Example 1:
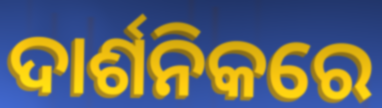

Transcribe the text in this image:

ଦାର୍ଶନିକରେ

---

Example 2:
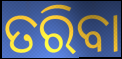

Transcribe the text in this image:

ତରିବା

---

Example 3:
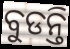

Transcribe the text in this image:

ବୁଡନ୍ତି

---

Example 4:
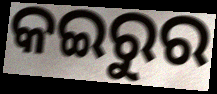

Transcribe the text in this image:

କଇରୁର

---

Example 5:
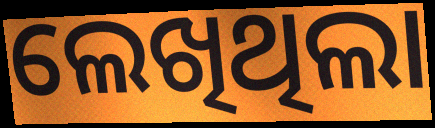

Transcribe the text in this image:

ଲେଖିଥିଲା